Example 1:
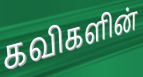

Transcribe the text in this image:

கவிகளின்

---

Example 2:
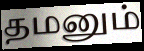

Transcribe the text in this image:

தமனும்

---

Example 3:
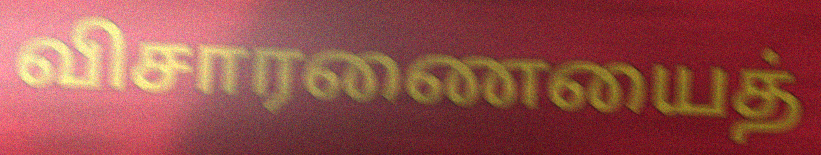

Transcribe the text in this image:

விசாரணையைத்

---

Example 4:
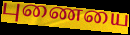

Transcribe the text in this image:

புணையை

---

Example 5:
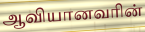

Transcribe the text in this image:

ஆவியானவரின்